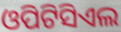
ଓପିଟିସିଏଲ